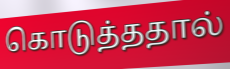
கொடுத்ததால்